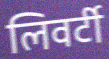
लिवर्टी